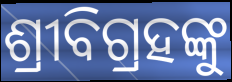
ଶ୍ରୀବିଗ୍ରହଙ୍କୁ